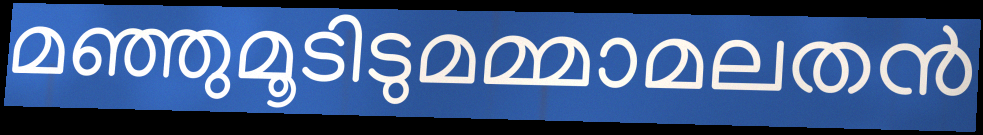
മഞ്ഞുമൂടിടുമമ്മാമലതൻ